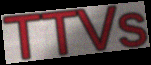
TTVs